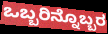
ಒಬ್ಬರಿನ್ನೊಬ್ಬರ